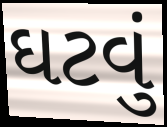
ઘટવું